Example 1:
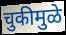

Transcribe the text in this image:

चुकीमुळे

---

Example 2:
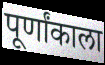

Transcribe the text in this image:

पूर्णांकाला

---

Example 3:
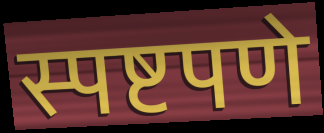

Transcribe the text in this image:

स्पष्टपणे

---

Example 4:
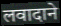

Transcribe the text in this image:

लवादाने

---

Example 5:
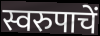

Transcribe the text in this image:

स्वरुपाचें